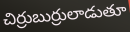
చిర్రుబుర్రులాడుతూ